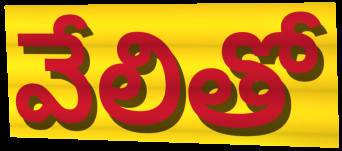
వేలితో